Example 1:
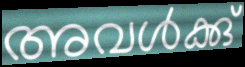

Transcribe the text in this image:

അവൾക്കു്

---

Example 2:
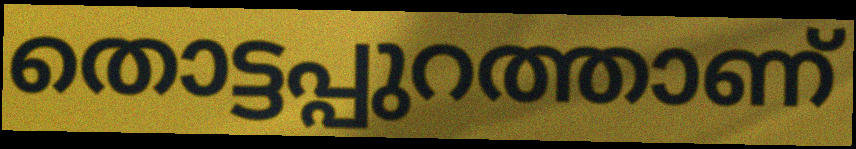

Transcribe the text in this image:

തൊട്ടപ്പുറത്താണ്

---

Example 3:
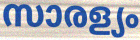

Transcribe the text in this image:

സാരള്യം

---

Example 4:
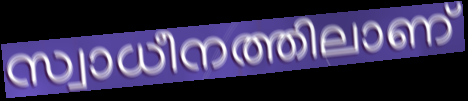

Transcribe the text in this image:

സ്വാധീനത്തിലാണ്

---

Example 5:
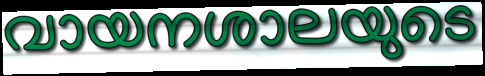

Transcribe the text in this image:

വായനശാലയുടെ